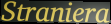
Straniera